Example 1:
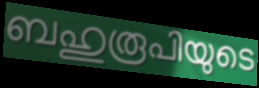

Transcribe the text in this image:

ബഹുരൂപിയുടെ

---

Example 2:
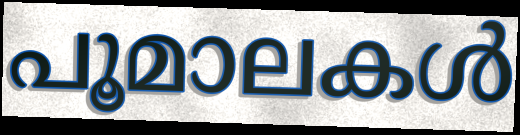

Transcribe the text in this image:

പൂമാലകൾ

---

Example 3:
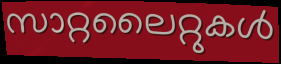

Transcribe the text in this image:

സാറ്റലൈറ്റുകൾ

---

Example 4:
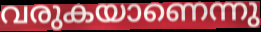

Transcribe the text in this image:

വരുകയാണെന്നു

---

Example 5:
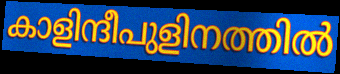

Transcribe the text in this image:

കാളിന്ദീപുളിനത്തിൽ